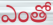
ఎంతో